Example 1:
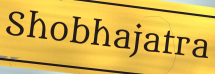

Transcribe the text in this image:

Shobhajatra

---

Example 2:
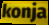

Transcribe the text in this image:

konja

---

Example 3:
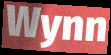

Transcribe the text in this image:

Wynn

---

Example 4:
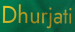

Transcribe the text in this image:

Dhurjati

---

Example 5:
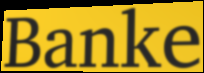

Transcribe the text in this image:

Banke